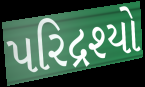
પરિદ્રશ્યો